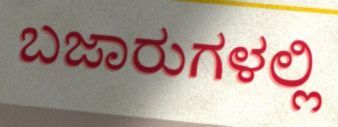
ಬಜಾರುಗಳಲ್ಲಿ